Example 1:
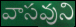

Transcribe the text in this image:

వాసవుని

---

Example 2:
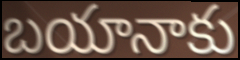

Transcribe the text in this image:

బయానాకు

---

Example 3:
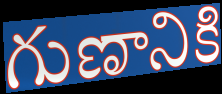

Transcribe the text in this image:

గుణానికి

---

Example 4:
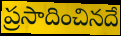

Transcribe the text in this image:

ప్రసాదించినదే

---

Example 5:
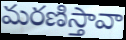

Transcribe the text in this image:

మరణిస్తావా